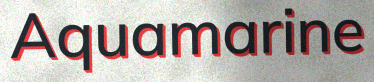
Aquamarine